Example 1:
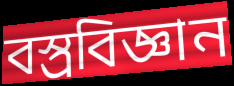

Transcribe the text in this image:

বস্ত্রবিজ্ঞান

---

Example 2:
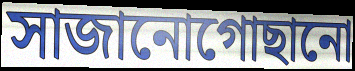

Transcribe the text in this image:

সাজানোগোছানো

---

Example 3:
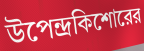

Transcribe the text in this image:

উপেন্দ্রকিশোরের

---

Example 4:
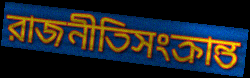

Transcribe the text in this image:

রাজনীতিসংক্রান্ত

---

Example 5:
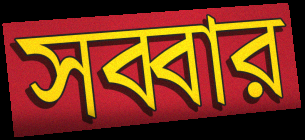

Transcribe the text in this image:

সব্বার